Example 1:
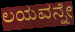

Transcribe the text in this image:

ಲಯವನ್ನೇ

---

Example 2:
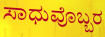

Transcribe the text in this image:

ಸಾಧುವೊಬ್ಬರ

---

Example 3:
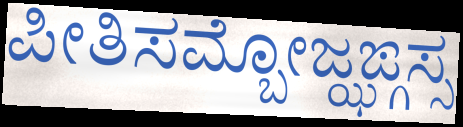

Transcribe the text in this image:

ಪೀತಿಸಮ್ಬೋಜ್ಝಙ್ಗಸ್ಸ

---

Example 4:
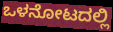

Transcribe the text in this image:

ಒಳನೋಟದಲ್ಲಿ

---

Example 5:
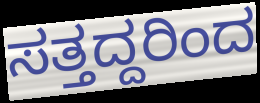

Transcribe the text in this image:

ಸತ್ತದ್ದರಿಂದ